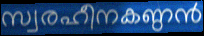
സ്വരഹീനകണ്ഠൻ